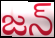
జన్